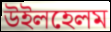
উইলহেলম